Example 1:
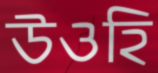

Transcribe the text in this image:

উওহি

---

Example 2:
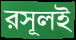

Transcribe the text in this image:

রসূলই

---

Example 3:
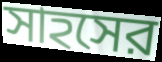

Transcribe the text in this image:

সাহসের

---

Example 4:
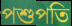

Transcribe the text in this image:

পশুপতি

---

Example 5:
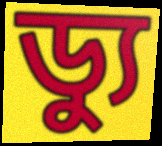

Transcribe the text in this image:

ড্যু